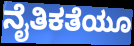
ನೈತಿಕತೆಯೂ